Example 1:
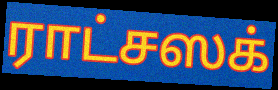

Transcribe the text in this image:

ராட்சஸக்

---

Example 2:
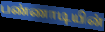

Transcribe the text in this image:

பண்ணாடியின்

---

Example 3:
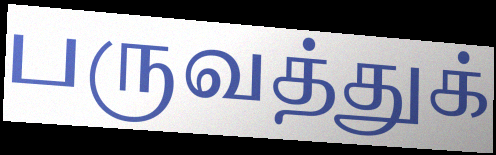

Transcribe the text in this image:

பருவத்துக்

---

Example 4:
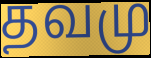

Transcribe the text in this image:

தவமு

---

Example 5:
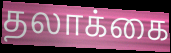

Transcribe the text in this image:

தலாக்கை